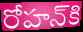
రోహన్‌కి